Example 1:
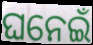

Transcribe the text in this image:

ଘନେଇଁ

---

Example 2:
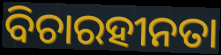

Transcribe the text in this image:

ବିଚାରହୀନତା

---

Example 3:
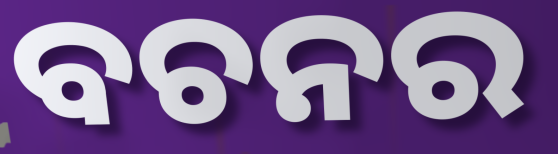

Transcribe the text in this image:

ବଚନର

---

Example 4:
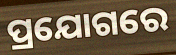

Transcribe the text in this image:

ପ୍ରଯୋଗରେ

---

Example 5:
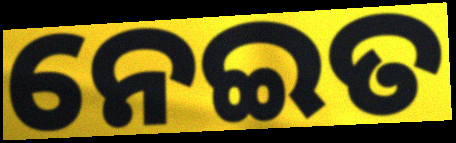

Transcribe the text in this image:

ନେଇତ